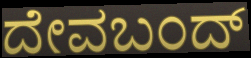
ದೇವಬಂದ್